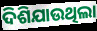
ଦିଶିଯାଉଥିଲା